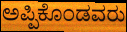
ಅಪ್ಪಿಕೊಂಡವರು